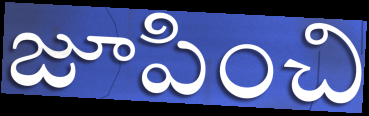
జూపించి